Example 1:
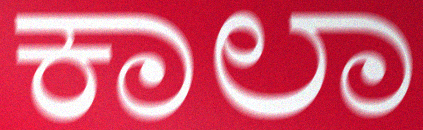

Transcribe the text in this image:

ಕಾಲಾ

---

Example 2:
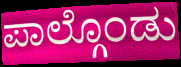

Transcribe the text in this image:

ಪಾಲ್ಗೊಂಡು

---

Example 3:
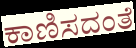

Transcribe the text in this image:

ಕಾಣಿಸದಂತೆ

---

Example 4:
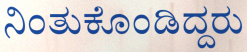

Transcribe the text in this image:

ನಿಂತುಕೊಂಡಿದ್ದರು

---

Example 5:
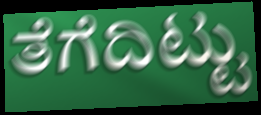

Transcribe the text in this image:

ತೆಗೆದಿಟ್ಟು